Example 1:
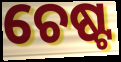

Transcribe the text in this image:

ଚେଷ୍ଟ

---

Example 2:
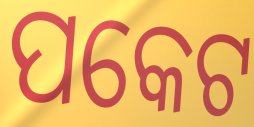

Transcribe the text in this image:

ପକେଟ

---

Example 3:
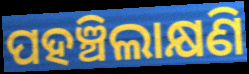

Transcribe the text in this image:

ପହଞ୍ଚିଲାକ୍ଷଣି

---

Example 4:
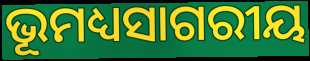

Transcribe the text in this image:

ଭୂମଧ୍ୟସାଗରୀୟ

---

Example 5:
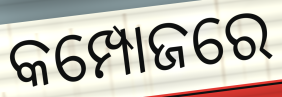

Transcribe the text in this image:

କମ୍ପୋଜରେ